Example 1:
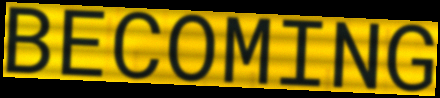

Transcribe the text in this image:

BECOMING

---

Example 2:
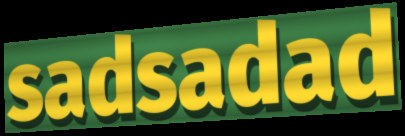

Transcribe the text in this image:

sadsadad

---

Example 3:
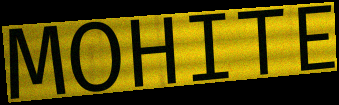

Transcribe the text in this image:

MOHITE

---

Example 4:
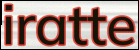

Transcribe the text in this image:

iratte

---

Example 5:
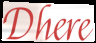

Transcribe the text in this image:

Dhere